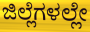
ಜಿಲ್ಲೆಗಳಲ್ಲೇ